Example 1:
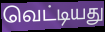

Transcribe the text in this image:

வெட்டியது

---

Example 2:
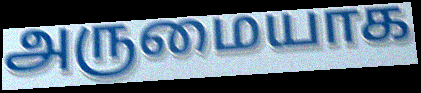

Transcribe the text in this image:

அருமையாக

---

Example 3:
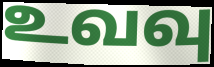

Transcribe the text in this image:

உவவு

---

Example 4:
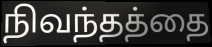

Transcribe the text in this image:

நிவந்தத்தை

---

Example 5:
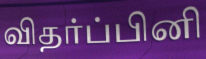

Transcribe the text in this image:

விதர்ப்பினி